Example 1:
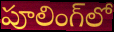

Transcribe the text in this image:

పూలింగ్‌లో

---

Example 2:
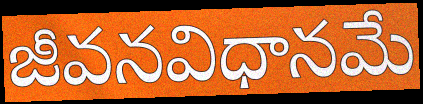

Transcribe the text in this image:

జీవనవిధానమే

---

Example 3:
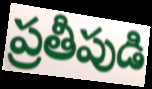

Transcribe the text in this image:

ప్రతీపుడి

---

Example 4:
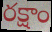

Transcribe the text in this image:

రక్షాం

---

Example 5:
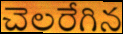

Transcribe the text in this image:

చెలరేగిన